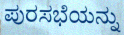
ಪುರಸಭೆಯನ್ನು